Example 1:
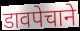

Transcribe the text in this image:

डावपेचाने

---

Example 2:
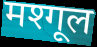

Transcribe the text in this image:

मश्गूल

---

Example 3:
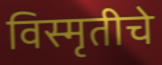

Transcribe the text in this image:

विस्मृतीचे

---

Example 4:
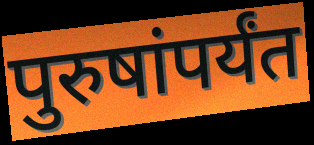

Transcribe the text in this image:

पुरुषांपर्यंत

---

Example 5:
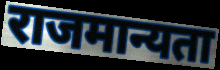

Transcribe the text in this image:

राजमान्यता